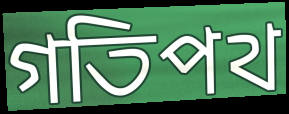
গতিপথ